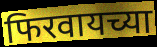
फिरवायच्या